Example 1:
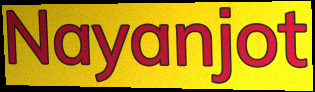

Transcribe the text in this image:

Nayanjot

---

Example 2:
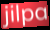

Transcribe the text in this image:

jilpa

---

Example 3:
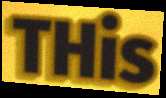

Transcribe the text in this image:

THis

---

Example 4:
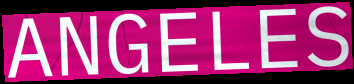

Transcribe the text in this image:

ANGELES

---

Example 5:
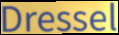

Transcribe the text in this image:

Dressel